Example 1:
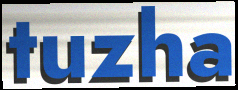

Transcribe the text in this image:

tuzha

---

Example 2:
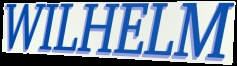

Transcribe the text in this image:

WILHELM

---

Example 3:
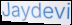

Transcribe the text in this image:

Jaydevi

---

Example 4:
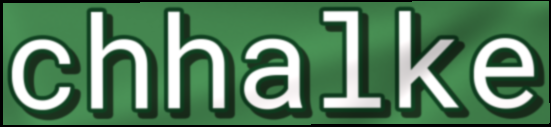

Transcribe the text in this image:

chhalke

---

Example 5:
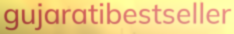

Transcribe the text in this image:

gujaratibestseller